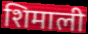
शिमाली